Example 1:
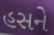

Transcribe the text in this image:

હસને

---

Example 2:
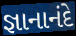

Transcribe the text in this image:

જ્ઞાનાનંદે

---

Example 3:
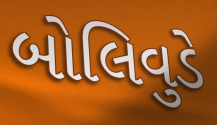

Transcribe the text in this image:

બોલિવુડે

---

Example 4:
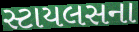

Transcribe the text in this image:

સ્ટાયલસના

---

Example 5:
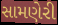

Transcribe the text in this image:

સામણેરી